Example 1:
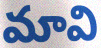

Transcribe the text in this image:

మావి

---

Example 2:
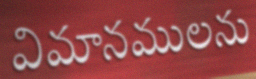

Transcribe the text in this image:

విమానములను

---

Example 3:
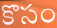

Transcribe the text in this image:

కొసం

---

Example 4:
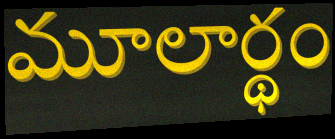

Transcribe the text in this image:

మూలార్థం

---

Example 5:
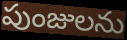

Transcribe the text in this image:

పుంజులను